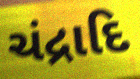
ચંદ્રાદિ